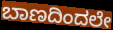
ಬಾಣದಿಂದಲೇ